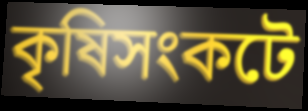
কৃষিসংকটে